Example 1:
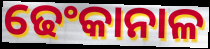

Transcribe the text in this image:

ଢେଂକାନାଳ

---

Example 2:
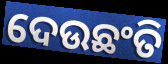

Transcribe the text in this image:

ଦେଉଛଂତି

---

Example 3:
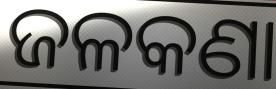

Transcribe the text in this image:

ଜଳକଣା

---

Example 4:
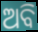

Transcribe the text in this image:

ଅବି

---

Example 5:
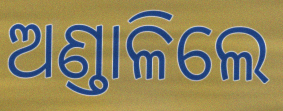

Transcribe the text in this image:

ଅଣ୍ଡାଳିଲେ